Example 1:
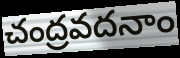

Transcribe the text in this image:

చంద్రవదనాం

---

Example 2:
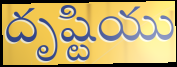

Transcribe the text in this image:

దృష్టియు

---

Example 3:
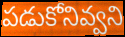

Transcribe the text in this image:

పడుకోనివ్వని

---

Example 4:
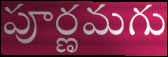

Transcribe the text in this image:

పూర్ణమగు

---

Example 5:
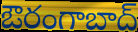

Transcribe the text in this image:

ఔరంగాబాద్